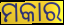
ମକାର